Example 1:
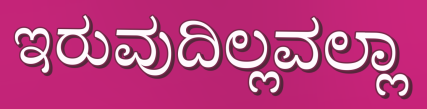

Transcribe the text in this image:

ಇರುವುದಿಲ್ಲವಲ್ಲಾ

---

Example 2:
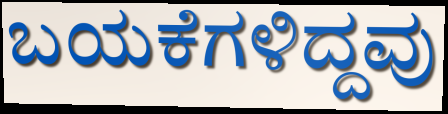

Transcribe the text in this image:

ಬಯಕೆಗಳಿದ್ದವು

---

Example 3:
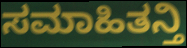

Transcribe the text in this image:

ಸಮಾಹಿತನ್ತಿ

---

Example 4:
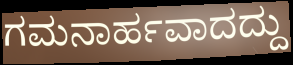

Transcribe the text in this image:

ಗಮನಾರ್ಹವಾದದ್ದು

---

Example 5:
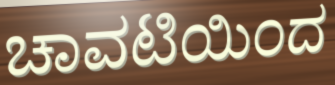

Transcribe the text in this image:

ಚಾವಟಿಯಿಂದ